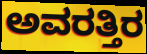
ಅವರತ್ತಿರ